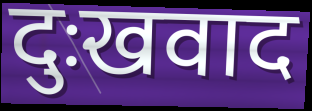
दुःखवाद